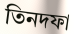
তিনদফা